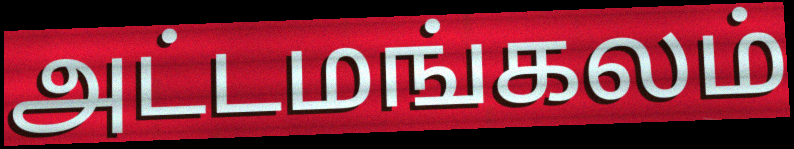
அட்டமங்கலம்